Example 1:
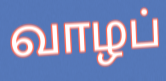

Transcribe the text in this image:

வாழப்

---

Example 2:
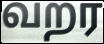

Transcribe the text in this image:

வறர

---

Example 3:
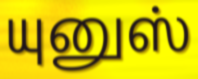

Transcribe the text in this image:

யுனுஸ்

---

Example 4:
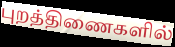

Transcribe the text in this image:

புறத்திணைகளில்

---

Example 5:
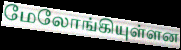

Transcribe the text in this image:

மேலோங்கியுள்ளன